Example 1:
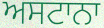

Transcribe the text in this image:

ਅਸਟਾਨਾ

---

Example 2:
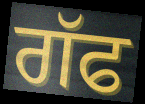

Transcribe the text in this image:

ਗੱਫ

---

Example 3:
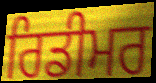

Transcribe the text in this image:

ਰਿਡੀਮਰ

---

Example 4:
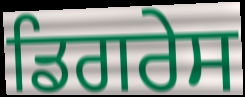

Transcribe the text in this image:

ਡਿਗਰੇਸ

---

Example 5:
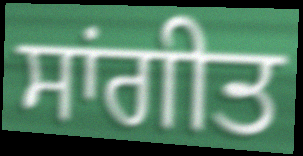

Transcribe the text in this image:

ਸਾਂਗੀਤ